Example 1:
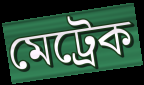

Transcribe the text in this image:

মেট্রেক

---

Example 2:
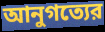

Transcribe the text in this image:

আনুগত্যের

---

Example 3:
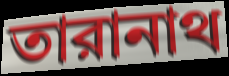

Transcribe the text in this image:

তারানাথ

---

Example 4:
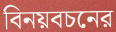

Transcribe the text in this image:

বিনয়বচনের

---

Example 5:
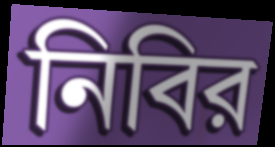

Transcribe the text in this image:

নিবির